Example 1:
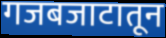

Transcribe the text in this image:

गजबजाटातून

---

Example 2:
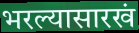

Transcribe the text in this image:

भरल्यासारखं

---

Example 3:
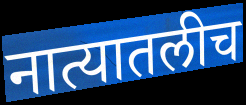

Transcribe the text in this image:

नात्यातलीच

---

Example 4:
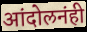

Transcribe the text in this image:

आंदोलनंही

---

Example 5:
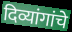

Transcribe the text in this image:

दिव्यांगांचे